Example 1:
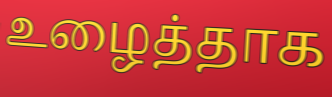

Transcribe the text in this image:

உழைத்தாக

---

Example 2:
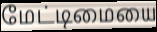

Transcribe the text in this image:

மேட்டிமையை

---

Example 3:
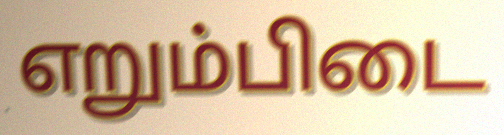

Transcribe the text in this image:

எறும்பிடை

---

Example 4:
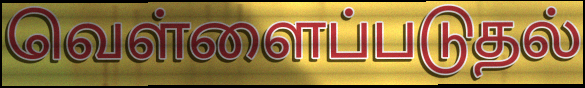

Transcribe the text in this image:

வெள்ளைப்படுதல்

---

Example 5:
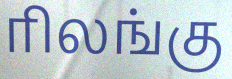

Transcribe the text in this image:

ரிலங்கு